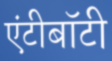
एंटीबॉटी